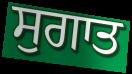
ਸੁਗਾਤ